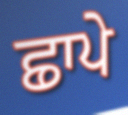
ਛਾਪੇ